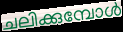
ചലിക്കുമ്പോൾ